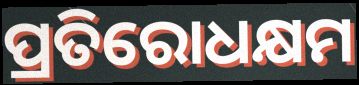
ପ୍ରତିରୋଧକ୍ଷମ